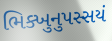
ભિક્ખુનુપસ્સયં